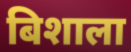
बिशाला